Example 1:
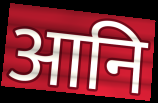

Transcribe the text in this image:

आनि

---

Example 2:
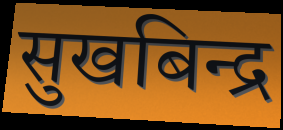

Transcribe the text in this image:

सुखबिन्द्र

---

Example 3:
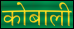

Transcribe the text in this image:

कोबाली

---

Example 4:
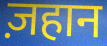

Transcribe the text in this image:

ज़हान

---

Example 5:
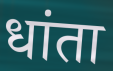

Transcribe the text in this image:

धांता